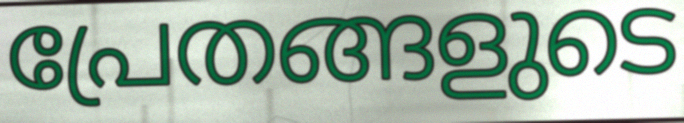
പ്രേതങ്ങളുടെ